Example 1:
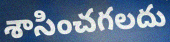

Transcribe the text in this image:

శాసించగలదు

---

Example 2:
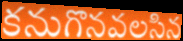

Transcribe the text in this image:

కనుగొనవలసిన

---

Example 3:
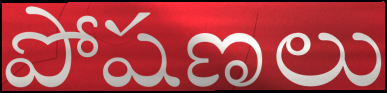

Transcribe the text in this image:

పోషణలు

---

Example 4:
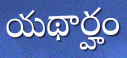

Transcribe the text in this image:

యథార్హం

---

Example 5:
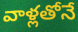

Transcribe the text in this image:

వాళ్లతోనే